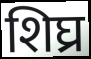
शिघ्र